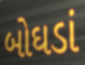
બોઘડાં